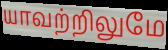
யாவற்றிலுமே